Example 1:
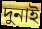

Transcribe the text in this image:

দুনাই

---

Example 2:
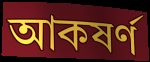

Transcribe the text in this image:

আকষৰ্ণ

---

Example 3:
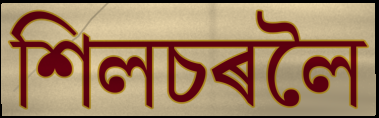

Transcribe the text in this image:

শিলচৰলৈ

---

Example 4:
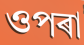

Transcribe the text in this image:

ওপৰা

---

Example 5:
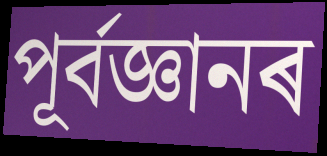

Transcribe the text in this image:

পূৰ্বজ্ঞানৰ